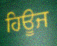
ਹਿਊਜ